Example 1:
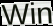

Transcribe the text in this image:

Win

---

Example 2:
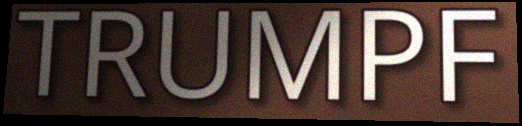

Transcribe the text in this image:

TRUMPF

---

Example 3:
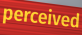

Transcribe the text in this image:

perceived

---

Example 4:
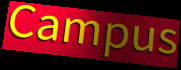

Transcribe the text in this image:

Campus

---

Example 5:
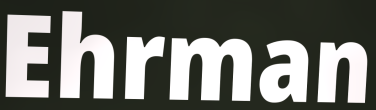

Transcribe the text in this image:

Ehrman